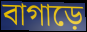
বাগাড়ে